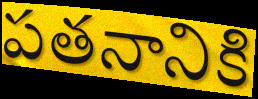
పతనానికి